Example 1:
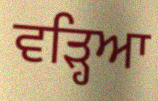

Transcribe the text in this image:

ਵੜ੍ਹਿਆ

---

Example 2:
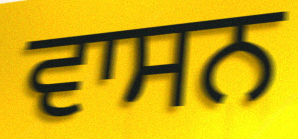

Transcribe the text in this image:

ਵਾਸਨ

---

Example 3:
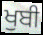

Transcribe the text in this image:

ਖੁਬੀ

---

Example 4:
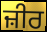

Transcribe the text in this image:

ਜ਼ੀਰ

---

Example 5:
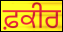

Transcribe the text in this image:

ਫ਼ਕੀਰ